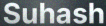
Suhash